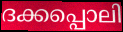
ദക്കപ്പൊലി